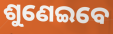
ଶୁଣେଇବେ